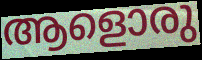
ആളൊരു